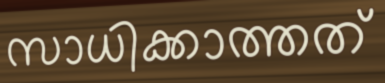
സാധിക്കാത്തത്